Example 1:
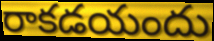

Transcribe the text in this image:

రాకడయందు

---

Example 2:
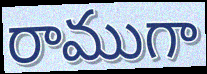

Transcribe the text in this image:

రాముగా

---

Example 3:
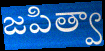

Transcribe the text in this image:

జపిత్వా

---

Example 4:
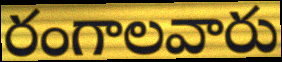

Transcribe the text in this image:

రంగాలవారు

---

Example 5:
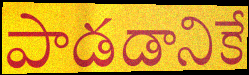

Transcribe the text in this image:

పాడడానికే